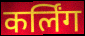
कर्लिंग